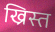
ख्रिस्त